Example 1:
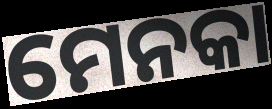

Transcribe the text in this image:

ମେନକା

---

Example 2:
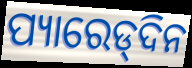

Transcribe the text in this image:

ପ୍ୟାରେଡ୍‌ଦିନ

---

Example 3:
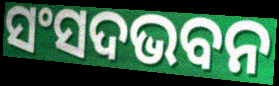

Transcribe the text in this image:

ସଂସଦଭବନ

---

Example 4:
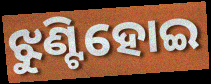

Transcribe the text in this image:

ଝୁଣ୍ଟିହୋଇ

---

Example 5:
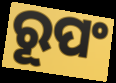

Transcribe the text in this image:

ରୂପଂ